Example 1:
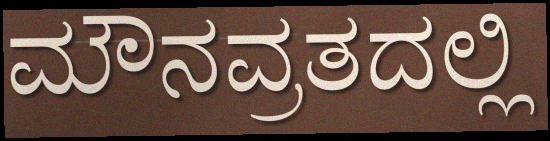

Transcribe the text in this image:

ಮೌನವ್ರತದಲ್ಲಿ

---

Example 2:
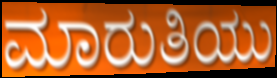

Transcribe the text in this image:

ಮಾರುತಿಯು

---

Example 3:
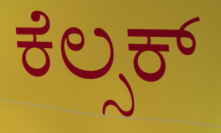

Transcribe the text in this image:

ಕೆಲ್ಸಕ್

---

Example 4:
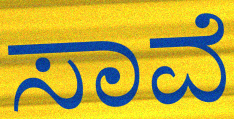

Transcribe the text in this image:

ಸಾವೆ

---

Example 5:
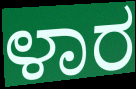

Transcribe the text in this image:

ಳಾರ